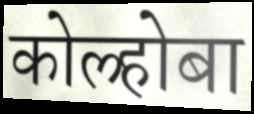
कोल्होबा